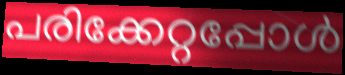
പരിക്കേറ്റപ്പോൾ